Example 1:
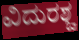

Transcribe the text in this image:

ವಿದುರಶ್ಚ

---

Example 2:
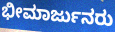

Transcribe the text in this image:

ಭೀಮಾರ್ಜುನರು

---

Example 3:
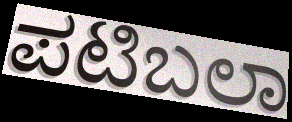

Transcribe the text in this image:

ಪಟಿಬಲಾ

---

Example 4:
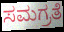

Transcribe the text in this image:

ಸಮಗ್ರತೆ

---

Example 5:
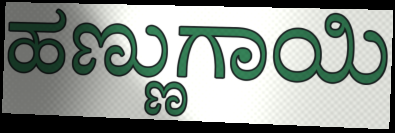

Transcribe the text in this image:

ಹಣ್ಣುಗಾಯಿ